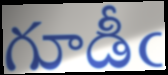
గూడీఁ